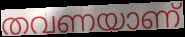
തവണയാണ്